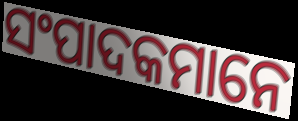
ସଂପାଦକମାନେ